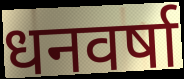
धनवर्षा